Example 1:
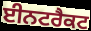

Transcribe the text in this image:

ਈਨਟਰੈਕਟ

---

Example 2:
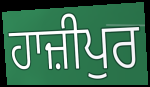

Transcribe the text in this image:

ਹਾਜ਼ੀਪੁਰ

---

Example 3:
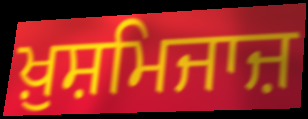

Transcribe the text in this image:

ਖ਼ੁਸ਼ਮਿਜਾਜ਼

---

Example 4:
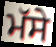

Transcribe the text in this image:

ਮੱਸੇ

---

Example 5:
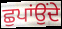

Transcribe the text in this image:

ਛੁਪਾਂਉਂਦੇ